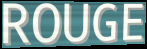
ROUGE